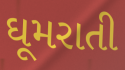
ઘૂમરાતી